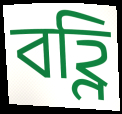
বহ্ণি